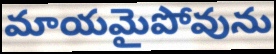
మాయమైపోవును